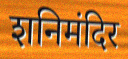
शनिमंदिर